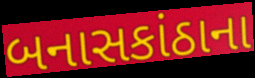
બનાસકાંઠાના